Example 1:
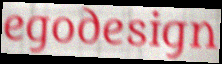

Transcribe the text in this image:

egodesign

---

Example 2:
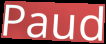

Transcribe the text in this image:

Paud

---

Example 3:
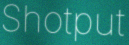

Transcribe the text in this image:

Shotput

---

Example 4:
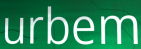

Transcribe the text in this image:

urbem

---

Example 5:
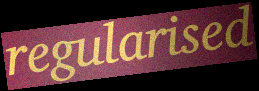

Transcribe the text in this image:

regularised